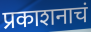
प्रकाशनाचं